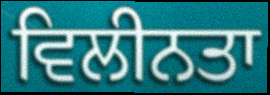
ਵਿਲੀਨਤਾ